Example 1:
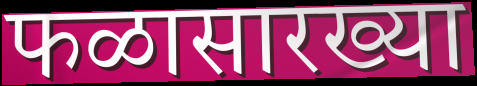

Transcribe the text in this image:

फळासारख्या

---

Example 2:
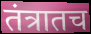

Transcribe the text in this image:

तंत्रातच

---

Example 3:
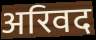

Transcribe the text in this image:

अरिवद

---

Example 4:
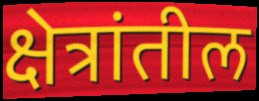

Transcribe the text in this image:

क्षेत्रांतील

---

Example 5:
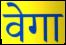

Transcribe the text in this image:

वेगा